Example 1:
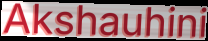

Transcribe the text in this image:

Akshauhini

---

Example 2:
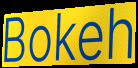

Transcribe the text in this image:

Bokeh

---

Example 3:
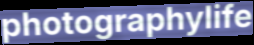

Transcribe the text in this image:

photographylife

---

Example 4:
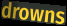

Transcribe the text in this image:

drowns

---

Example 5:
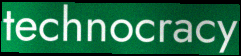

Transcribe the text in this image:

technocracy